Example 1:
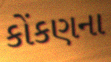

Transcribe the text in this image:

કોંકણના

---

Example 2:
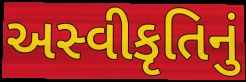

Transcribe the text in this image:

અસ્વીકૃતિનું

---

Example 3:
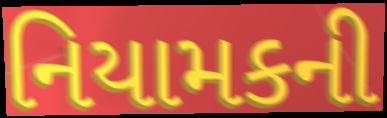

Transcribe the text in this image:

નિયામકની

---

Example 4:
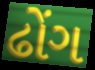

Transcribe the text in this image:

ઢોંગ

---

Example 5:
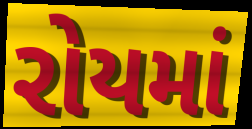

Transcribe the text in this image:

રોયમાં